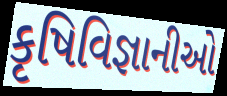
કૃષિવિજ્ઞાનીઓ